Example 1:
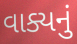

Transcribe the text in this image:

વાક્યનું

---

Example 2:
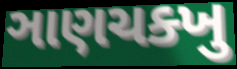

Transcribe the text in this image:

ઞાણચક્ખુ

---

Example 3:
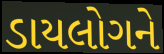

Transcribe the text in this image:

ડાયલોગને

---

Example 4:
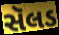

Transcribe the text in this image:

સૅલડ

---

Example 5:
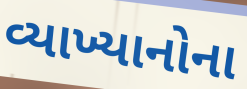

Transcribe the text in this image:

વ્યાખ્યાનોના